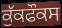
ਕੁੱਕਫੌਕਸ